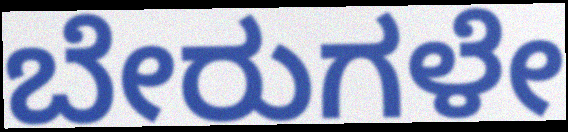
ಬೇರುಗಳೇ